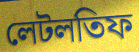
লেটলতিফ